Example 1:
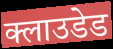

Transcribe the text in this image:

क्लाउडेड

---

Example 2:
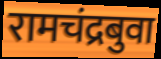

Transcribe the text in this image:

रामचंद्रबुवा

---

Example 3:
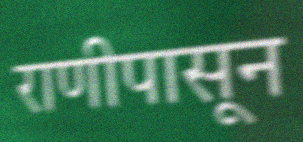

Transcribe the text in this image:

राणीपासून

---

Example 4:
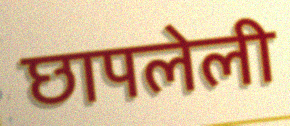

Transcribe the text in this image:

छापलेली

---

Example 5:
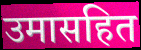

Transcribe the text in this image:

उमासहित